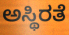
ಅಸ್ಥಿರತೆ